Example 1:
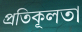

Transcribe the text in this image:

প্রতিকূলতা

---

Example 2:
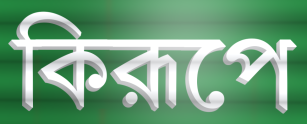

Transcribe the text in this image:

কিরূপে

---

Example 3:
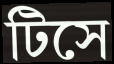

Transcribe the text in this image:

টিসে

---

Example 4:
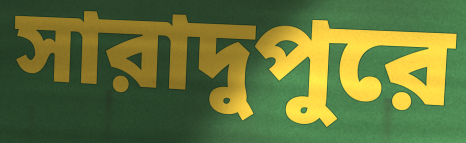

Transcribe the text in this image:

সারাদুপুরে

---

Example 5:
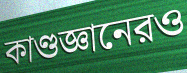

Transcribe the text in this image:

কাণ্ডজ্ঞানেরও